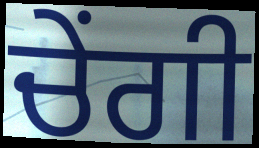
ਚੇਂਗੀ